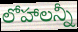
లోహాలన్నీ